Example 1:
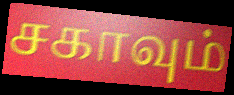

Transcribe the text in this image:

சகாவும்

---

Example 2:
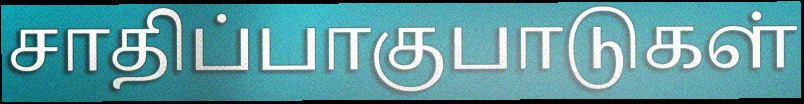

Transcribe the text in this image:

சாதிப்பாகுபாடுகள்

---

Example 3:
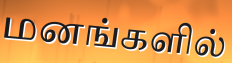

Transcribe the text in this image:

மனங்களில்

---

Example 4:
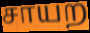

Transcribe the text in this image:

சாயற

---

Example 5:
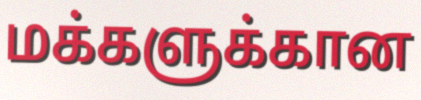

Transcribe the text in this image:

மக்களுக்கான